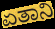
ಏತಾನಿ